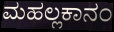
ಮಹಲ್ಲಕಾನಂ